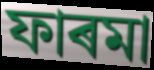
ফাৰমা